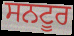
ਸਨਟੂਰ